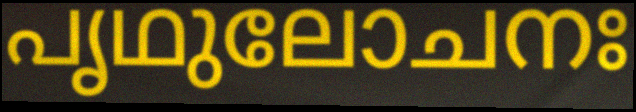
പൃഥുലോചനഃ